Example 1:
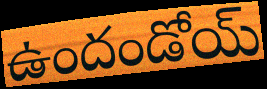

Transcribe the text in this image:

ఉందండోయ్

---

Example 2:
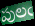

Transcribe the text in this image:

పులఁ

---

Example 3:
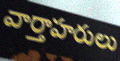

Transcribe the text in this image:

వార్తాహరులు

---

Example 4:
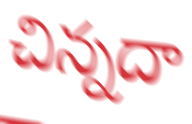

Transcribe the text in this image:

చిన్నదా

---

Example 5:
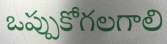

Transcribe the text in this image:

ఒప్పుకోగలగాలి